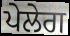
ਪੇਲੇਗ